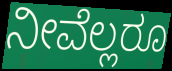
ನೀವೆಲ್ಲರೂ